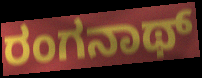
ರಂಗನಾಥ್